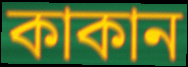
কাকান